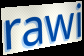
rawi